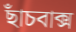
ছাঁচবাক্স